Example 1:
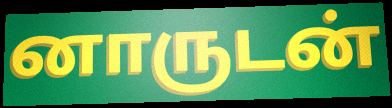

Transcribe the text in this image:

னாருடன்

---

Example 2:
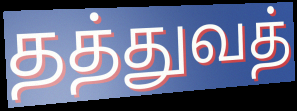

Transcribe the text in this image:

தத்துவத்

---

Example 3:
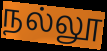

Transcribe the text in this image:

நல்லூ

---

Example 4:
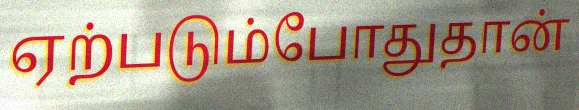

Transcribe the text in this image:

ஏற்படும்போதுதான்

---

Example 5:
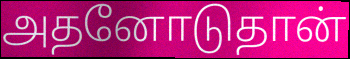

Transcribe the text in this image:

அதனோடுதான்